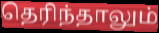
தெரிந்தாலும்